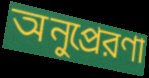
অনুপ্রেরণা